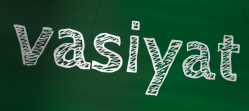
vasiyat